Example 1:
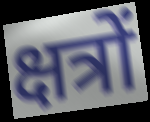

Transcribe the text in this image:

क्षत्रों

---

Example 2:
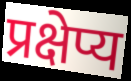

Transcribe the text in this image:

प्रक्षेप्य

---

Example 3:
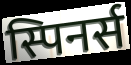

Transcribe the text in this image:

स्पिनर्स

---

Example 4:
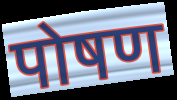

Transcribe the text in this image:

पोषण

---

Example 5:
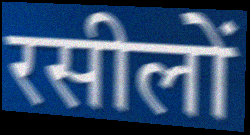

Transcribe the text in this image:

रसीलों